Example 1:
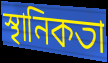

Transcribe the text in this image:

স্থানিকতা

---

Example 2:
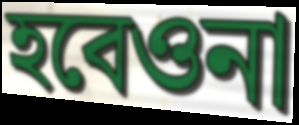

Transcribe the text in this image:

হবেওনা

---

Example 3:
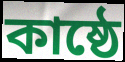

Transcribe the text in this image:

কাষ্ঠে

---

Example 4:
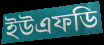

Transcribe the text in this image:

ইউএফডি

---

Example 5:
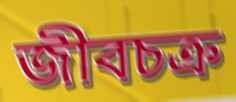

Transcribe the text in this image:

জীবচক্র